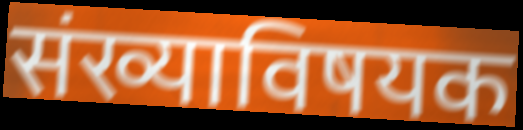
संख्याविषयक